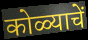
कोळ्याचें